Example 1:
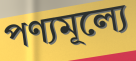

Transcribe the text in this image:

পণ্যমূল্যে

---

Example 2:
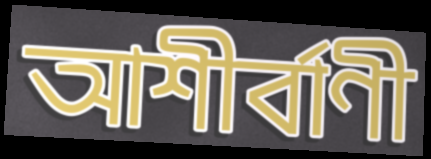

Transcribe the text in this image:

আশীর্বাণী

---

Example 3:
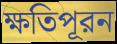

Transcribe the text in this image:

ক্ষতিপূরন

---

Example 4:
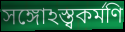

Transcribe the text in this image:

সঙ্গোঽস্ত্বকর্মণি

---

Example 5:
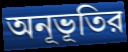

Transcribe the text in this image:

অনূভূতির